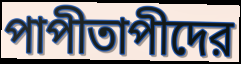
পাপীতাপীদের